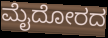
ಮೈದೋರದ